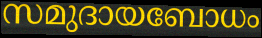
സമുദായബോധം